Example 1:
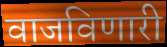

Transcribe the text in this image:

वाजविणारी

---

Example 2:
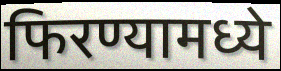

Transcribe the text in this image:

फिरण्यामध्ये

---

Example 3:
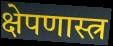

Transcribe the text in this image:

क्षेपणास्त्र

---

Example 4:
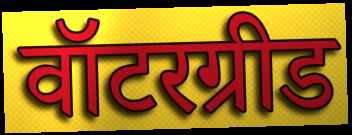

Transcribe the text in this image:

वॉटरग्रीड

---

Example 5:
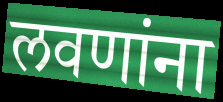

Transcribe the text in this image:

लवणांना